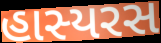
હાસ્યરસ